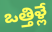
ఒత్తిళ్లే